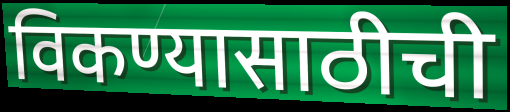
विकण्यासाठीची